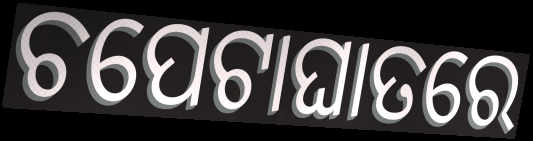
ଚପେଟାଘାତରେ